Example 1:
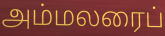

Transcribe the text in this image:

அம்மலரைப்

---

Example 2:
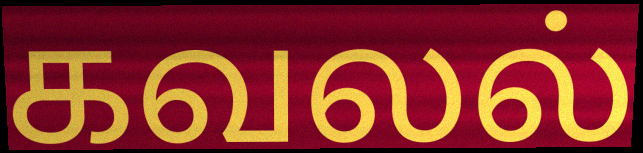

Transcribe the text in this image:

கவலல்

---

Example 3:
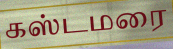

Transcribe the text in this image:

கஸ்டமரை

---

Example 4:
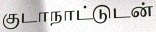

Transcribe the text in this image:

குடாநாட்டுடன்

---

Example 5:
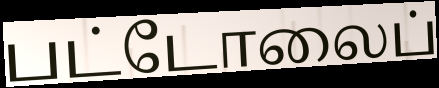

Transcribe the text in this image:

பட்டோலைப்